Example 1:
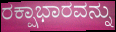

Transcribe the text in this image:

ರಕ್ಷಾಭಾರವನ್ನು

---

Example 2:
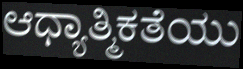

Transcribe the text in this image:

ಆಧ್ಯಾತ್ಮಿಕತೆಯು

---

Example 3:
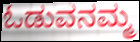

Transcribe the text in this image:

ಓಡುವನಮ್ಮ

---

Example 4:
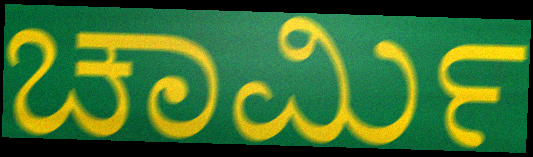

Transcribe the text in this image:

ಚಾರ್ಮಿ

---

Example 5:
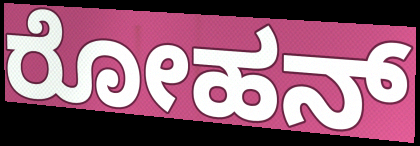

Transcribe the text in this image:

ರೋಹನ್